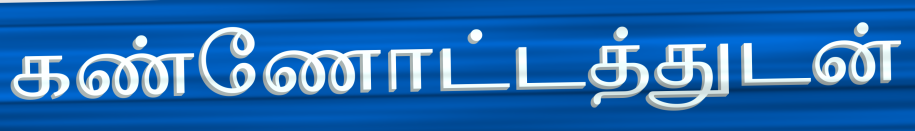
கண்ணோட்டத்துடன்